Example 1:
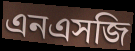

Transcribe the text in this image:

এনএসজি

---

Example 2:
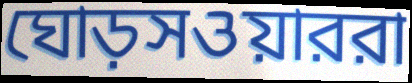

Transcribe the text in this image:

ঘোড়সওয়াররা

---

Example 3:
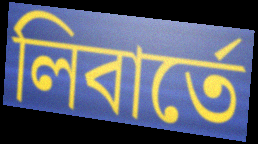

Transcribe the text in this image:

লিবার্তে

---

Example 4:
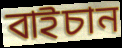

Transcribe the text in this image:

বাইচান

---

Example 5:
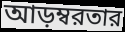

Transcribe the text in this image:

আড়ম্বরতার